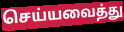
செய்யவைத்து